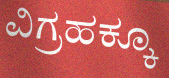
ವಿಗ್ರಹಕ್ಕೂ